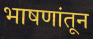
भाषणांतून